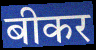
बीकर